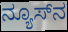
ನ್ಯೂಸ್‌ನ